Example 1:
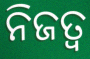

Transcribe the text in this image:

ନିଜତ୍ବ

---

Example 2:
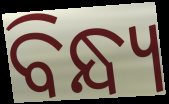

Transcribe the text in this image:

ବିନ୍ଧ୍ୟ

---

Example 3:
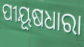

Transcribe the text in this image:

ପୀୟୂଷଧାରା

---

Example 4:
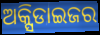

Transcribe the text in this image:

ଅକ୍ସିଡାଇଜର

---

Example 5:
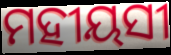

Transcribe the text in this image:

ମହୀୟସୀ